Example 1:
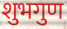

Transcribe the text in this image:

शुभगुण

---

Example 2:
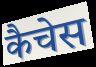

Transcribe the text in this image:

कैचेस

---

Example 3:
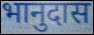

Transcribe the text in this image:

भानुदास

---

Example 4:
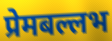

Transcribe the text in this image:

प्रेमबल्लभ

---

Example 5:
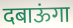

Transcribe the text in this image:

दबाऊंगा